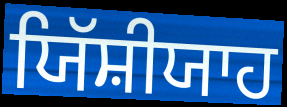
ਯਿੱਸ਼ੀਯਾਹ